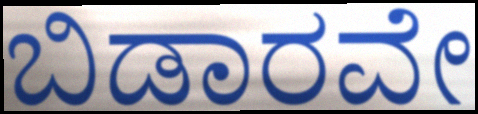
ಬಿಡಾರವೇ